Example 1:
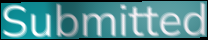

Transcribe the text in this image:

Submitted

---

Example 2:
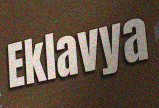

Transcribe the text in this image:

Eklavya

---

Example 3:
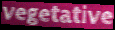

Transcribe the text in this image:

vegetative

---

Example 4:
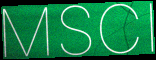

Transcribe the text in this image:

MSCI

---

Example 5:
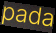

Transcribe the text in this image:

pada